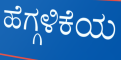
ಹೆಗ್ಗಳಿಕೆಯ